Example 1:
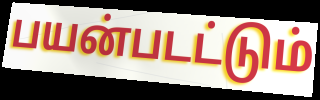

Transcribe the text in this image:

பயன்படட்டும்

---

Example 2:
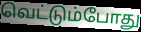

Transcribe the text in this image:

வெட்டும்போது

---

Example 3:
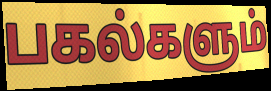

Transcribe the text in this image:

பகல்களும்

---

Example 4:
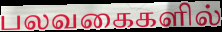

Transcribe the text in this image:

பலவகைகளில்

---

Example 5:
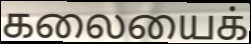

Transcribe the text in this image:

கலையைக்